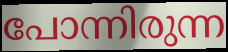
പോന്നിരുന്ന